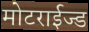
मोटराईज्ड